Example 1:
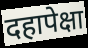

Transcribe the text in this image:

दहापेक्षा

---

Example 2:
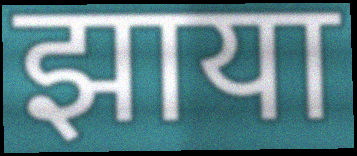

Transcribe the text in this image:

झाया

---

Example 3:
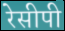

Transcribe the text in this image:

रेसीपी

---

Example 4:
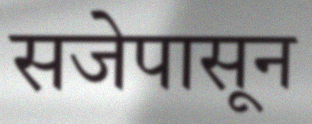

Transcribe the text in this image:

सजेपासून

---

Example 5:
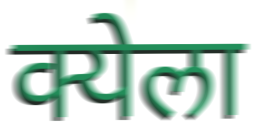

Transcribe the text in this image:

क्येला